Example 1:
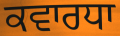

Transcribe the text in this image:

ਕਵਾਰਧਾ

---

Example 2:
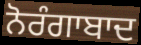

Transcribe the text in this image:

ਨੋਰੰਗਾਬਾਦ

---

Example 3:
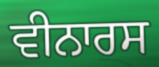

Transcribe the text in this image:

ਵੀਨਾਰਸ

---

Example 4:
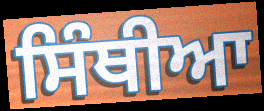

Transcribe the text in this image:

ਸਿੰਥੀਆ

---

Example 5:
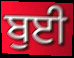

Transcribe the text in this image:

ਬੁਈ